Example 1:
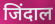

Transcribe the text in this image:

जिंदाल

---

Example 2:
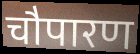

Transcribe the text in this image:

चौपारण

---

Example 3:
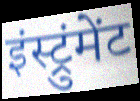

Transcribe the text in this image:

इंस्ट्रुंमेंट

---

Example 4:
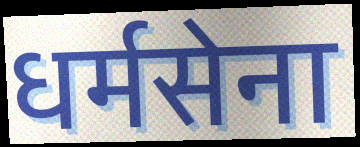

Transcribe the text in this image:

धर्मसेना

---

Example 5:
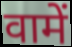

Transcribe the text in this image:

वामें